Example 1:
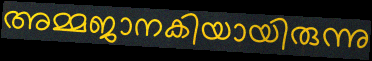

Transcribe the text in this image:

അമ്മജാനകിയായിരുന്നു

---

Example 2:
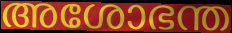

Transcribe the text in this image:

അശോഭന്ത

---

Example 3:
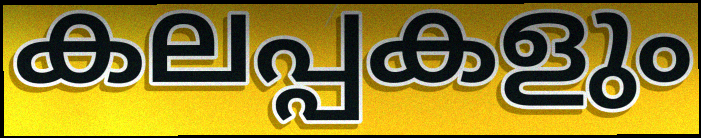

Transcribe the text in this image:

കലപ്പകളും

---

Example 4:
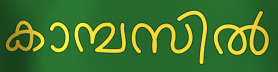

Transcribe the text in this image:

കാമ്പസിൽ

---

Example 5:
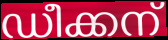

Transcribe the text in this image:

ഡീക്കന്